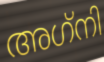
അഗ്‌നി